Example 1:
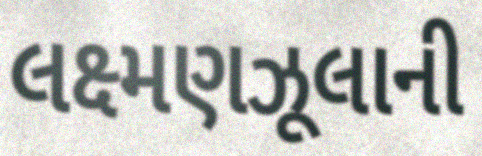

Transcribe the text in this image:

લક્ષ્મણઝૂલાની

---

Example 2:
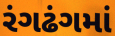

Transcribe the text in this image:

રંગઢંગમાં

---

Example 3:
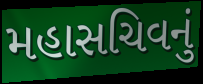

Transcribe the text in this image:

મહાસચિવનું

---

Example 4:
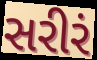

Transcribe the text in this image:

સરીરં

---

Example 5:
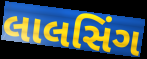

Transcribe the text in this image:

લાલસિંગ